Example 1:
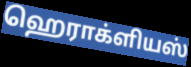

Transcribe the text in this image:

ஹெராக்ளியஸ்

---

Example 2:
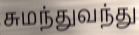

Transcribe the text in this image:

சுமந்துவந்து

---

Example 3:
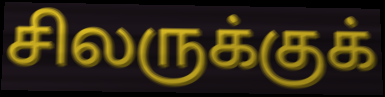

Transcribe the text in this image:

சிலருக்குக்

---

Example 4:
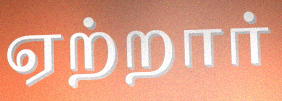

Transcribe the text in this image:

ஏற்றார்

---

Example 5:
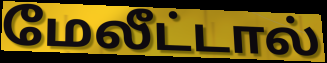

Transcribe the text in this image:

மேலீட்டால்